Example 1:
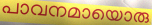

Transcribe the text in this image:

പാവനമായൊരു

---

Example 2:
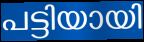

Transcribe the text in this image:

പട്ടിയായി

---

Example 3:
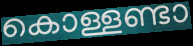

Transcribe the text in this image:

കൊള്ളണ്ടാ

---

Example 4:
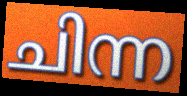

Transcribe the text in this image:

ചിന്ന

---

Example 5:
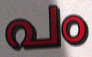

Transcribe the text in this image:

പം